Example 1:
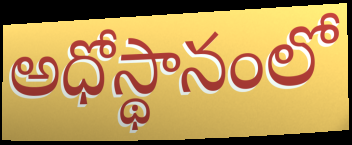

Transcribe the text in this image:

అధోస్థానంలో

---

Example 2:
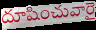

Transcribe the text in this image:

దూషించువారై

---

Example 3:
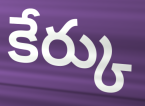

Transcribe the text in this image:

కేర్కు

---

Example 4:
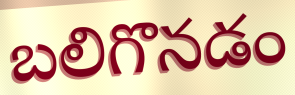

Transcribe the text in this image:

బలిగొనడం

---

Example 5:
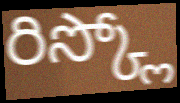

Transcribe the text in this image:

రిస్క్లో